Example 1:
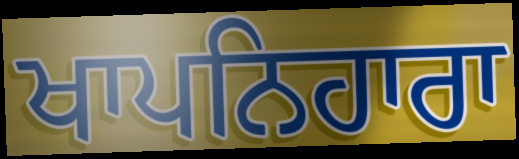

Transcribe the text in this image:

ਖਾਪਨਿਹਾਰਾ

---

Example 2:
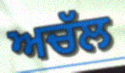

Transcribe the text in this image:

ਅਚੱਲ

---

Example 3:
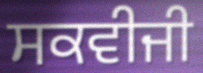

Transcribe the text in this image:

ਸਕਵੀਜੀ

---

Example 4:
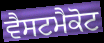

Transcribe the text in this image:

ਵੈਸਟਮੈਕੋਟ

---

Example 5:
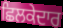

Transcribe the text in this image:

ਛਿਲਕੇਦਾਰ